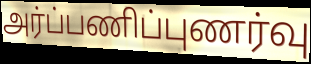
அர்ப்பணிப்புணர்வு